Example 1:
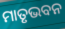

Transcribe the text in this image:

ମାତୃଭବନ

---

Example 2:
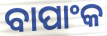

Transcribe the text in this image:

ବାପାଂକ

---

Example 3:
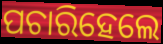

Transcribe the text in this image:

ପଚାରିହେଲେ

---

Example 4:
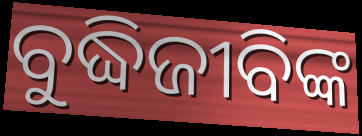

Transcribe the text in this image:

ବୁଦ୍ଧିଜୀବିଙ୍କ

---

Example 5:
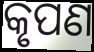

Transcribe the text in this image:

କୃପଣ